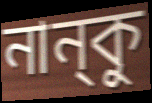
নান্‌কু